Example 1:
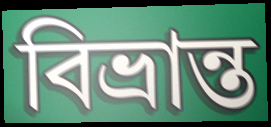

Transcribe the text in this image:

বিভ্রান্ত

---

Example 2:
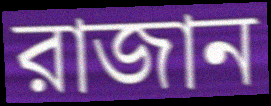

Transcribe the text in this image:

রাজান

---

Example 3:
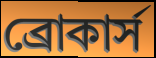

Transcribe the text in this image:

ব্রোকার্স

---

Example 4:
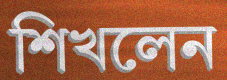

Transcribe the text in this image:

শিখলেন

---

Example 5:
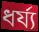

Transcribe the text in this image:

ধর্য্য